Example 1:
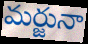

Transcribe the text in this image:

మర్జునా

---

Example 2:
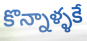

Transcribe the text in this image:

కొన్నాళ్ళకే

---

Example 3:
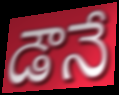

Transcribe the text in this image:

డౌనే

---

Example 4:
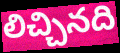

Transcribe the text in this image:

లిచ్చినది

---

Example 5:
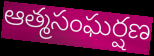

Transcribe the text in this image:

ఆత్మసంఘర్షణ